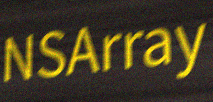
NSArray